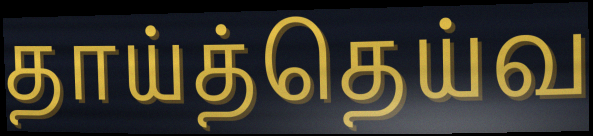
தாய்த்தெய்வ